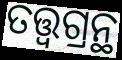
ତତ୍ତ୍ୱଗ୍ରନ୍ଥ